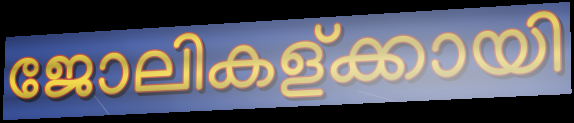
ജോലികള്ക്കായി